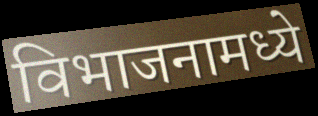
विभाजनामध्ये